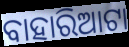
ବାହାରିଆଟା